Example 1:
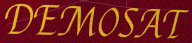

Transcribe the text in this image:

DEMOSAT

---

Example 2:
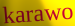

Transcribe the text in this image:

karawo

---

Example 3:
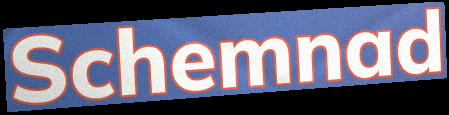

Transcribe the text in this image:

Schemnad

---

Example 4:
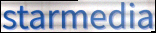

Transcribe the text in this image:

starmedia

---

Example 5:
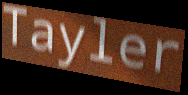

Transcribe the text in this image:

Tayler